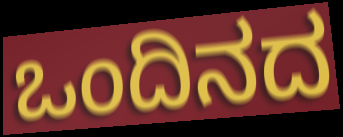
ಒಂದಿನದ